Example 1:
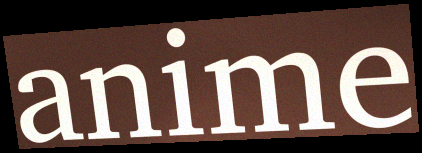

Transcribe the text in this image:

anime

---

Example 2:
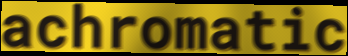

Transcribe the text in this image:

achromatic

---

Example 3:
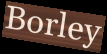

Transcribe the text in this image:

Borley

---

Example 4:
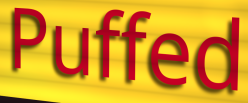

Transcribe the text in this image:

Puffed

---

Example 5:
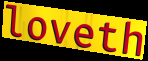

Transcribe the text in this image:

loveth